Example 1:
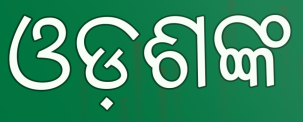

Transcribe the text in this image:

ଓଡ଼ଶଙ୍କ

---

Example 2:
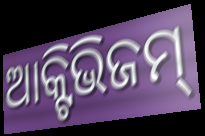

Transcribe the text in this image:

ଆକ୍ଟିଭିଜମ୍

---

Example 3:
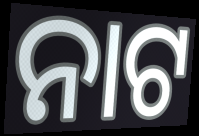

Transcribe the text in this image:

ନାଟ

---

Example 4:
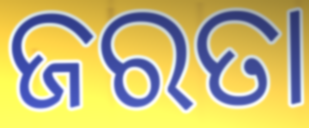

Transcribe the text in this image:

ଜରତା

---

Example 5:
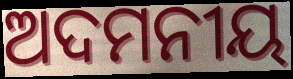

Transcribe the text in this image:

ଅଦମନୀୟ